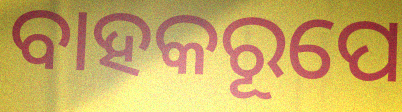
ବାହକରୂପେ